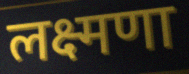
लक्ष्मणा